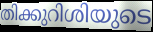
തിക്കുറിശിയുടെ